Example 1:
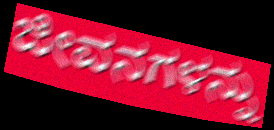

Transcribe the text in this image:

ಜೀವನಗಳನ್ನು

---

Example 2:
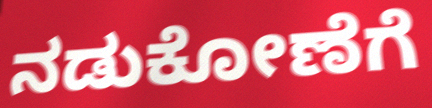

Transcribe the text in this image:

ನಡುಕೋಣೆಗೆ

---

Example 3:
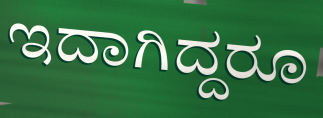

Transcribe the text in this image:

ಇದಾಗಿದ್ದರೂ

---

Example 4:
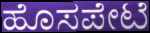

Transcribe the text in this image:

ಹೊಸಪೇಟೆ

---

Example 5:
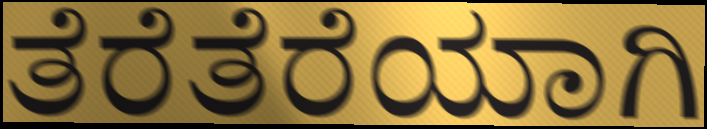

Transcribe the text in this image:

ತೆರೆತೆರೆಯಾಗಿ